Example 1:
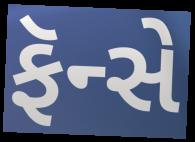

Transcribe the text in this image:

ફૅન્સે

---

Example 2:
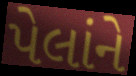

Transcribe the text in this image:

પેલાંને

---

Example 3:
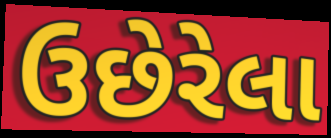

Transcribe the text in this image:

ઉછેરેલા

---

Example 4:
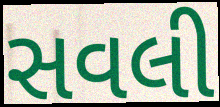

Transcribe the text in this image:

સવલી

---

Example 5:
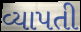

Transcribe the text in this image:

વ્યાપતી